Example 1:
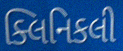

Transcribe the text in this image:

ક્લિનિકલી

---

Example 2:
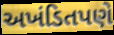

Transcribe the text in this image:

અખંડિતપણે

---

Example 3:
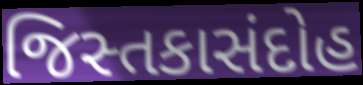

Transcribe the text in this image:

જિસ્તકાસંદોહ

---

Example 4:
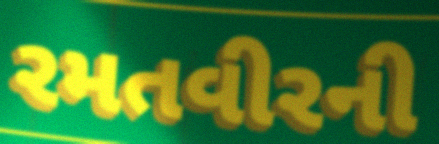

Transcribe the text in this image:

રમતવીરની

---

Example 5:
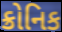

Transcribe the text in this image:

ક્રોનિક